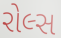
રોલ્સ